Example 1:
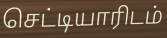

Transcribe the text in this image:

செட்டியாரிடம்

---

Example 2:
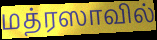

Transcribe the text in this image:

மத்ரஸாவில்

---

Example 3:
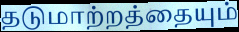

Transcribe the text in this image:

தடுமாற்றத்தையும்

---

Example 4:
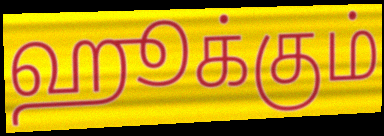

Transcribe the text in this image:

ஹூக்கும்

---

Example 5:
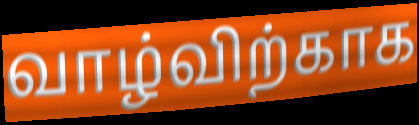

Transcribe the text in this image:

வாழ்விற்காக